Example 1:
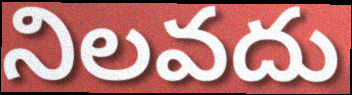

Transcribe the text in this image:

నిలవదు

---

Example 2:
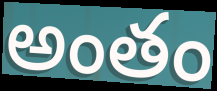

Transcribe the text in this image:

అంతం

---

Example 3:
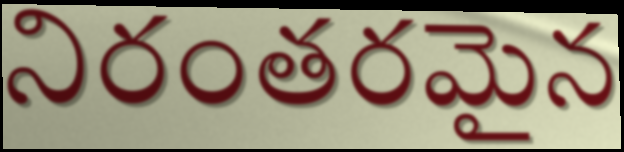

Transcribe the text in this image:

నిరంతరమైన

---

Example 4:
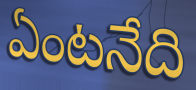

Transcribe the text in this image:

ఏంటనేది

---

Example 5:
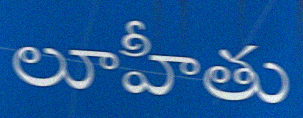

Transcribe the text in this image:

లూహీతు